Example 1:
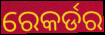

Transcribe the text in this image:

ରେକର୍ଡର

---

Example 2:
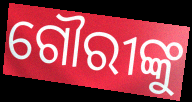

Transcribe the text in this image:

ଗୌରୀଙ୍କୁ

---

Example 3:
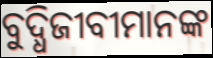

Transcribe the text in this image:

ବୁଦ୍ଧିଜୀବୀମାନଙ୍କ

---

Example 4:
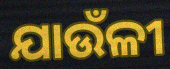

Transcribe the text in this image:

ଯାଉଁଳୀ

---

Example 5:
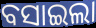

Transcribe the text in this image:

ବସାଇଲା